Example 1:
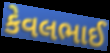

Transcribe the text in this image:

કેવલભાઈ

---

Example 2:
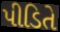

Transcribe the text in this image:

પીડિતે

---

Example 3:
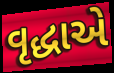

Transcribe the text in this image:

વૃદ્ધાએ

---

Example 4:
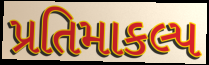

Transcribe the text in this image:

પ્રતિમાકલ્પ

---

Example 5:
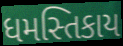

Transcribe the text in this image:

ધમસ્તિકાય